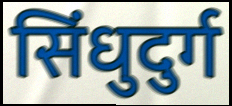
सिंधुदुर्ग